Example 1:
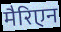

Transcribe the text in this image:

मैरिएन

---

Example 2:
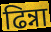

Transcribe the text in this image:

ढिन्ना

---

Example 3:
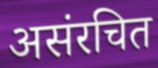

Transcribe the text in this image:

असंरचित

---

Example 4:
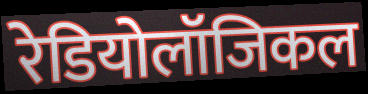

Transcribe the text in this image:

रेडियोलॉजिकल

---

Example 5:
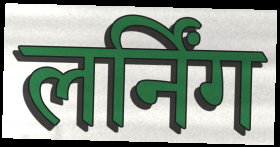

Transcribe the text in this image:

लर्निंग